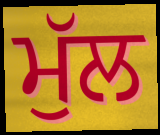
ਮੁੱਲ